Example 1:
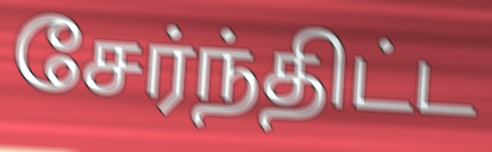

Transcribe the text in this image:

சேர்ந்திட்ட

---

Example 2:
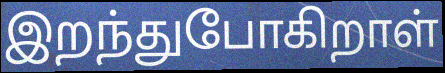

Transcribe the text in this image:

இறந்துபோகிறாள்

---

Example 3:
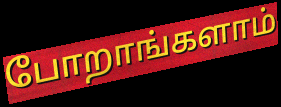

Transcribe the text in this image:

போறாங்களாம்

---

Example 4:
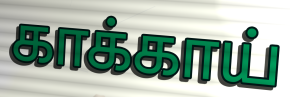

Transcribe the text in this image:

காக்காய்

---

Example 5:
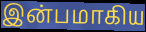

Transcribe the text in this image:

இன்பமாகிய